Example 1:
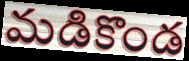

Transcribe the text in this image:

మడికొండ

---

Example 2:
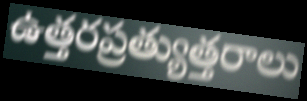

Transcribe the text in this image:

ఉత్తరప్రత్యుత్తరాలు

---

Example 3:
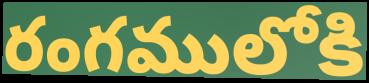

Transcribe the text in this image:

రంగములోకి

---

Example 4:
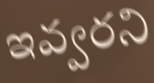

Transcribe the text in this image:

ఇవ్వరని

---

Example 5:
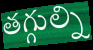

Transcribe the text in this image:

తగ్గుల్ని